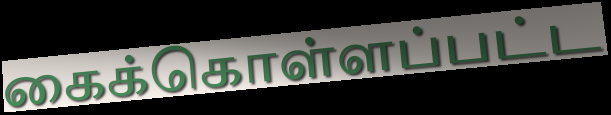
கைக்கொள்ளப்பட்ட